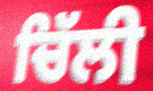
ਚਿੱਲੀ